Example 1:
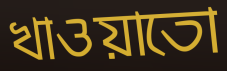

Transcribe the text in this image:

খাওয়াতো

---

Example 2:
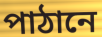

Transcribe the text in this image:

পাঠানে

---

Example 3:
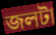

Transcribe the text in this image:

জলটা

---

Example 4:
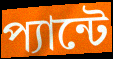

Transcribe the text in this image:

প্যান্টে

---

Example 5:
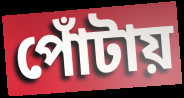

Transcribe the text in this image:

পোঁটায়